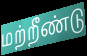
மற்றீண்டு